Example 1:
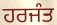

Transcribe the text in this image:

ਹਰਜੰਤ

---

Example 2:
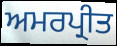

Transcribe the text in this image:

ਅਮਰਪ੍ਰੀਤ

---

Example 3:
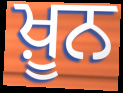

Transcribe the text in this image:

ਖ਼ੂਨ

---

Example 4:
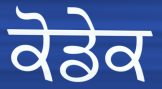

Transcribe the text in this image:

ਕੋਡੇਕ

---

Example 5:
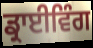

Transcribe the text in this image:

ਡ੍ਰਾਈਵਿੰਗ